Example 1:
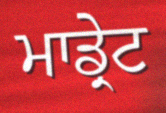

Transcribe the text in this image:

ਮਾਡ੍ਰੇਟ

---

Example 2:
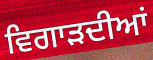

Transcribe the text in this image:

ਵਿਗਾੜਦੀਆਂ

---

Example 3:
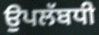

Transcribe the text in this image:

ਉਪਲੱਬਧੀ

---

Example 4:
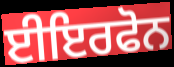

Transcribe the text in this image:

ਈਇਰਫੋਨ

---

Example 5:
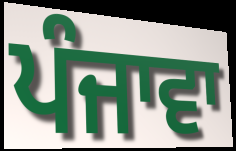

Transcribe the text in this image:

ਪੰਜਾਵਾ